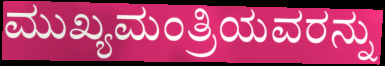
ಮುಖ್ಯಮಂತ್ರಿಯವರನ್ನು